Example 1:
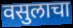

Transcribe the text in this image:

वसुलाचा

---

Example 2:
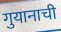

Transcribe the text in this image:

गुयानाची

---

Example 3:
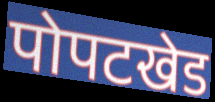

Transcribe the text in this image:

पोपटखेड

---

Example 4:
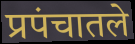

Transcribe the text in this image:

प्रपंचातले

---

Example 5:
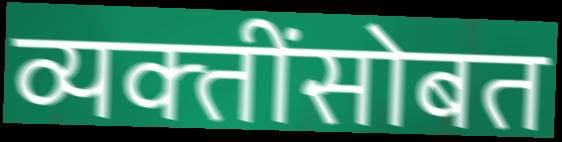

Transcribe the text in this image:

व्यक्‍तींसोबत